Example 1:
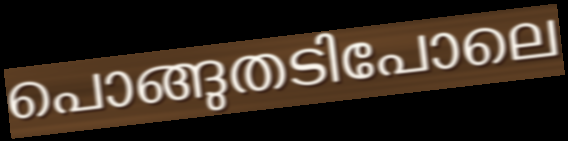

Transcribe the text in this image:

പൊങ്ങുതടിപോലെ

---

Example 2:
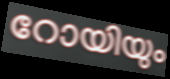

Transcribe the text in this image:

റോയിയും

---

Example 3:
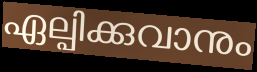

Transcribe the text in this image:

ഏല്പിക്കുവാനും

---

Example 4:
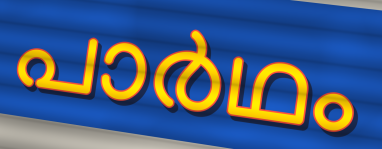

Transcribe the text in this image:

പാർഥം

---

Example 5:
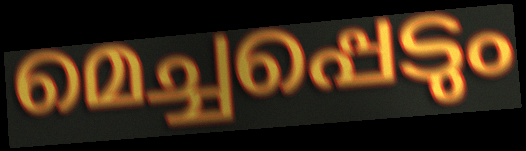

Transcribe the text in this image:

മെച്ചപ്പെടും